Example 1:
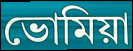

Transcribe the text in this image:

ভোমিয়া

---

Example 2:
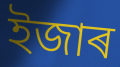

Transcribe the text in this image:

ইজাৰ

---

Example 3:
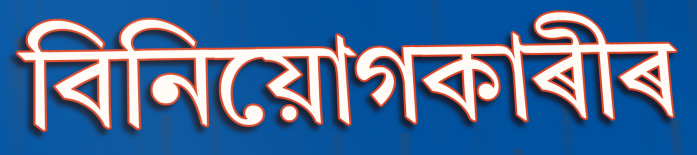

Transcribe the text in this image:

বিনিয়োগকাৰীৰ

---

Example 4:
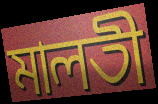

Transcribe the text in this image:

মালতী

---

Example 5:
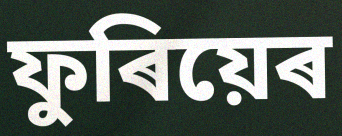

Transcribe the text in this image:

ফুৰিয়েৰ